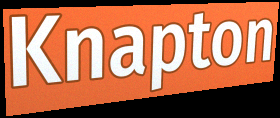
Knapton